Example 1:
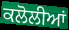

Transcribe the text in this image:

ਕਲੋਲੀਆਂ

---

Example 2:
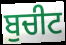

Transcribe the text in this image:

ਬੁਚੀਟ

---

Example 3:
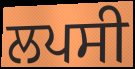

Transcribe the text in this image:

ਲਪਸੀ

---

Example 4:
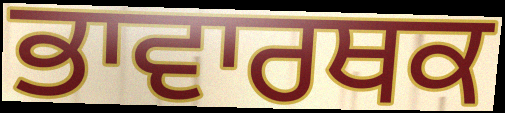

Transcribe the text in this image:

ਭਾਵਾਰਥਕ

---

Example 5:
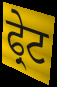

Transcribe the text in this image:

ਫ੍ਰੇਟ